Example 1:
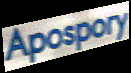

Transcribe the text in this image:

Apospory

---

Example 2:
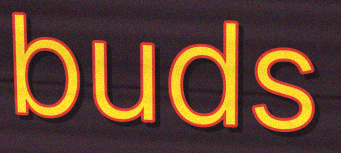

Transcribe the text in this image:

buds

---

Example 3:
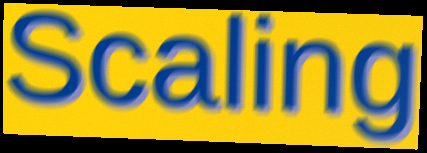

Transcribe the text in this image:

Scaling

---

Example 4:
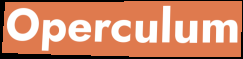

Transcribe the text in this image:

Operculum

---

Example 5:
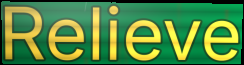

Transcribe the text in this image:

Relieve